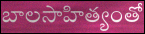
బాలసాహిత్యంతో